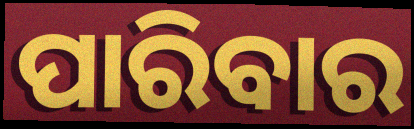
ପାରିବାର